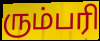
ரும்பரி